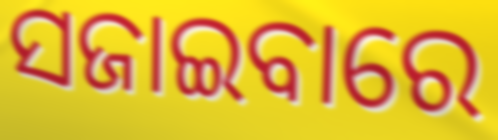
ସଜାଇବାରେ